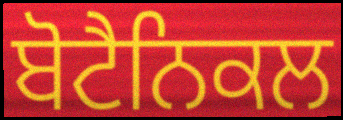
ਬੋਟੈਨਿਕਲ